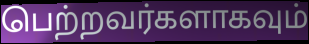
பெற்றவர்களாகவும்